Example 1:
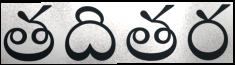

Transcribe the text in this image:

తదితర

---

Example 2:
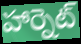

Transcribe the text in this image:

హార్నెట్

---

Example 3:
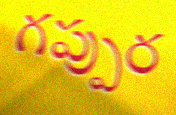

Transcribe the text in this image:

గప్పుర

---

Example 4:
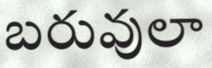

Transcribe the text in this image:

బరువులా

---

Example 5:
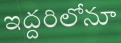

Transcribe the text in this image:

ఇద్దరిలోనూ